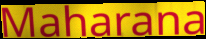
Maharana